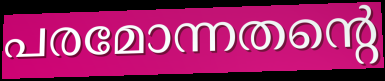
പരമോന്നതന്റെ